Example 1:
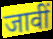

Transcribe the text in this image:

जावीं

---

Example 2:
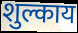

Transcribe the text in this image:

शुल्काय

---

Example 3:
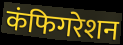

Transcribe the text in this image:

कंफिगरेशन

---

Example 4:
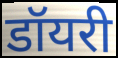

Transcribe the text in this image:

डॉयरी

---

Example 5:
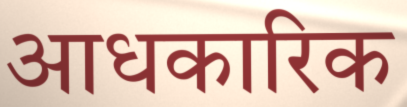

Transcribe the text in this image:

आधकारिक